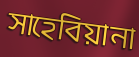
সাহেবিয়ানা